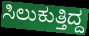
ಸಿಲುಕುತ್ತಿದ್ದ